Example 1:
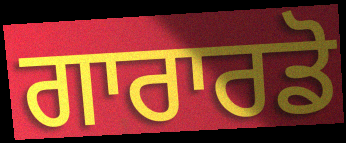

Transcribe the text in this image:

ਗਾਰਾਰਡੋ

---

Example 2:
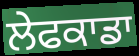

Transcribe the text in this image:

ਲੇਫਕਾਡਾ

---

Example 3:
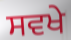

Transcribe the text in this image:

ਸਵਖੇ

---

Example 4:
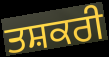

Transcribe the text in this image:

ਤਸ਼ਕਰੀ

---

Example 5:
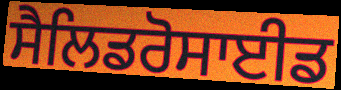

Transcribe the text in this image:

ਸੈਲਿਡਰੋਸਾਈਡ